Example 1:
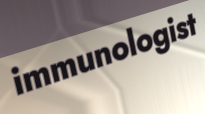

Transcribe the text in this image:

immunologist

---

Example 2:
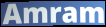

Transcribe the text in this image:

Amram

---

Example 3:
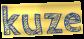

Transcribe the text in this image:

kuze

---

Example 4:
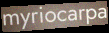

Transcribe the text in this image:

myriocarpa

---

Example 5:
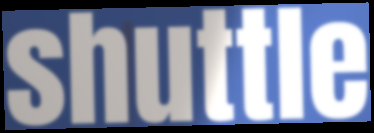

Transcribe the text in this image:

shuttle